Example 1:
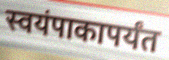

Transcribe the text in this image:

स्वयंपाकापर्यंत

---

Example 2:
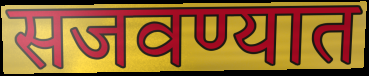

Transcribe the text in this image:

सजवण्यात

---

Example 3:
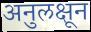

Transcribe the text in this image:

अनुलक्षून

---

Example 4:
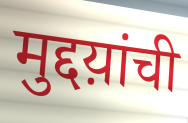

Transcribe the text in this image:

मुद्दय़ांची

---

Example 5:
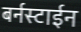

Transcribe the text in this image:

बर्नस्टाईन